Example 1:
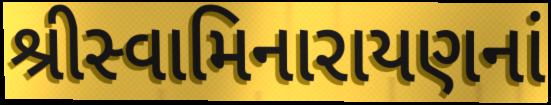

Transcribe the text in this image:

શ્રીસ્વામિનારાયણનાં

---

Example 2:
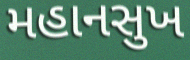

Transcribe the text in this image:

મહાનસુખ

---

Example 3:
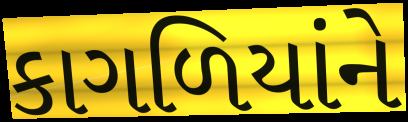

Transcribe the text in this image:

કાગળિયાંને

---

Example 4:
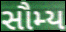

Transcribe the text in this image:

સૌમ્ય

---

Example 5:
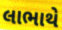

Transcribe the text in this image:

લાભાથે